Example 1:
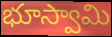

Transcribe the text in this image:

భూస్వామి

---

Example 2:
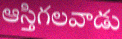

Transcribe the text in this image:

ఆస్తిగలవాడు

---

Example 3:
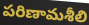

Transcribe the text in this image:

పరిణామశీలి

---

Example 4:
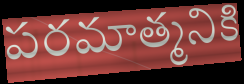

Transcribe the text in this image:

పరమాత్మనికి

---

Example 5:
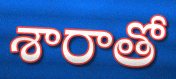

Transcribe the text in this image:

శారాతో